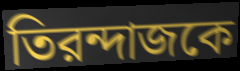
তিরন্দাজকে